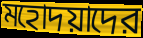
মহোদয়াদের